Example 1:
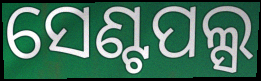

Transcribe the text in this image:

ସେଣ୍ଟପଲ୍ସ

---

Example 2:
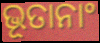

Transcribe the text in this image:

ଭୂତାନାଂ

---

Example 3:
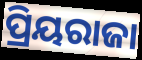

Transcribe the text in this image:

ପ୍ରିୟରାଜା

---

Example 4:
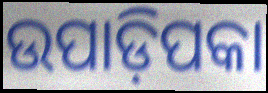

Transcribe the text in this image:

ଉପାଡ଼ିପକା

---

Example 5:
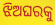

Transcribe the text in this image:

ଝିଅଘରକୁ